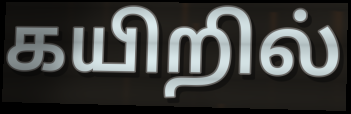
கயிறில்